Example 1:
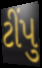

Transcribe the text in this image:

ટીંપુ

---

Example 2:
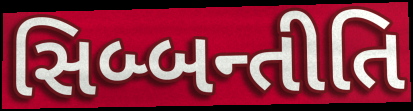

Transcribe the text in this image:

સિબ્બન્તીતિ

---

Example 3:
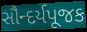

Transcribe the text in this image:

સૌન્દર્યપૂજક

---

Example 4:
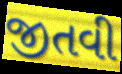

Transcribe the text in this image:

જીતવી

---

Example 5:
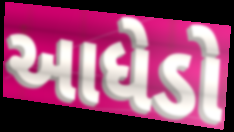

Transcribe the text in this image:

આધેડો